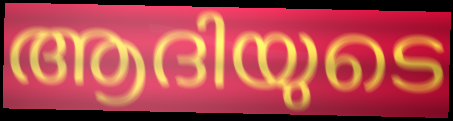
ആദിയുടെ